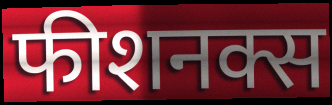
फीशनक्स